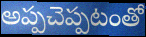
అప్పచెప్పటంతో